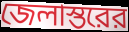
জেলাস্তরের